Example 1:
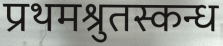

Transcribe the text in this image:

प्रथमश्रुतस्कन्ध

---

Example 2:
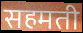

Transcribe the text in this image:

सहमती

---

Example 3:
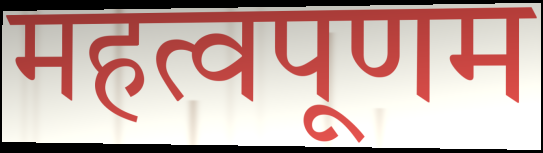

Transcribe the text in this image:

महत्वपूणम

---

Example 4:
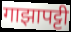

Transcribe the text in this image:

गाझापट्टी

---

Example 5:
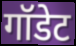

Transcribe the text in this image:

गॉडेट